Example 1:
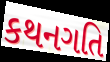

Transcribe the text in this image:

કથનગતિ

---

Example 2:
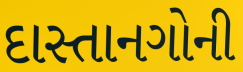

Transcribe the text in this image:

દાસ્તાનગોની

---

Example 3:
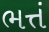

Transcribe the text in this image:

ભત્તં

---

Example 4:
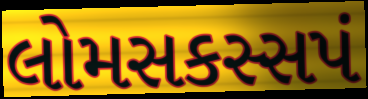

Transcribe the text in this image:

લોમસકસ્સપં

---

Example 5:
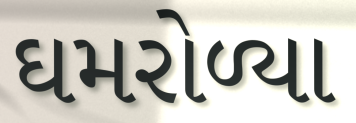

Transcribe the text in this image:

ઘમરોળ્યા